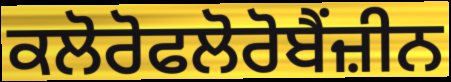
ਕਲੋਰੋਫਲੋਰੋਬੈਂਜ਼ੀਨ